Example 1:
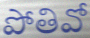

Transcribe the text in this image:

పోతివో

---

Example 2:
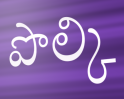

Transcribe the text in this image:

పొల్కి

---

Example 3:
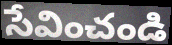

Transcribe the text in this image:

సేవించండి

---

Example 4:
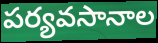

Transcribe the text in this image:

పర్యవసానాల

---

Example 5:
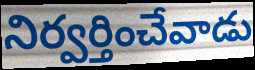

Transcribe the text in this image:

నిర్వర్తించేవాడు